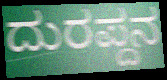
ದುರಪ್ದನ